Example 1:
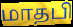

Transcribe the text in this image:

மாதபி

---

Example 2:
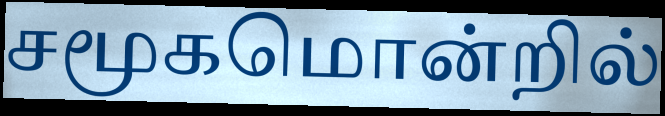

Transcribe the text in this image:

சமூகமொன்றில்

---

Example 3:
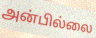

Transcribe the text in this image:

அன்பில்லை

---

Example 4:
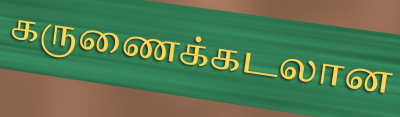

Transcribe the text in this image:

கருணைக்கடலான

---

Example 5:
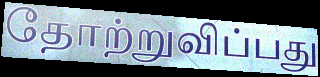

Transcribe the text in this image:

தோற்றுவிப்பது